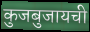
कुजबुजायची